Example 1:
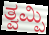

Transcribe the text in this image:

ತ್ವಮ್ಪಿ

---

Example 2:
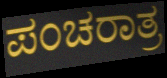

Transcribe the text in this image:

ಪಂಚರಾತ್ರ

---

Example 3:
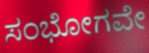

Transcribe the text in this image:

ಸಂಭೋಗವೇ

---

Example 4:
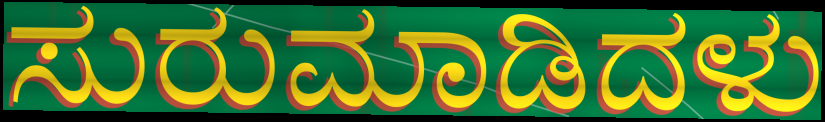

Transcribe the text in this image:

ಸುರುಮಾಡಿದಳು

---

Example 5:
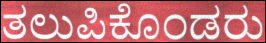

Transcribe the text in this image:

ತಲುಪಿಕೊಂಡರು